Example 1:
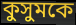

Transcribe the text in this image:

কুসুমকে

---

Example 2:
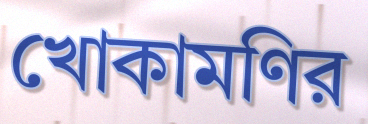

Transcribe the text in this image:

খোকামণির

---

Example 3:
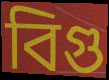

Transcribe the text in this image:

বিগু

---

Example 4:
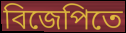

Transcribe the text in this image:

বিজেপিতে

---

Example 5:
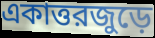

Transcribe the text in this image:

একাত্তরজুড়ে